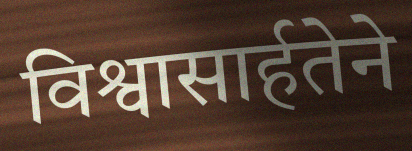
विश्वासार्हतेने